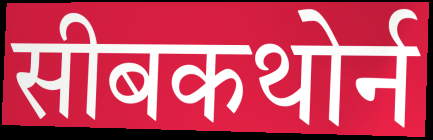
सीबकथोर्न